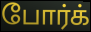
போர்க்